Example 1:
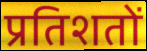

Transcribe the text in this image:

प्रतिशतों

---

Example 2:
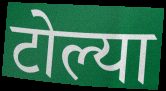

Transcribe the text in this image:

टोल्या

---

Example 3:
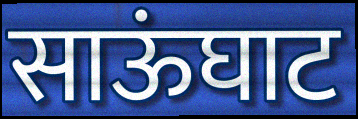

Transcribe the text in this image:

साऊंघाट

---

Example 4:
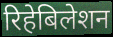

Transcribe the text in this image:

रिहेबिलेशन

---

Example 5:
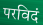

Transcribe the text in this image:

परविदं